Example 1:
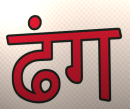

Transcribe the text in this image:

ढंग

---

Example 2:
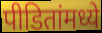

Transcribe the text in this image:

पीडितांमध्ये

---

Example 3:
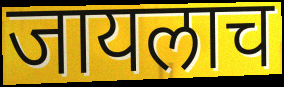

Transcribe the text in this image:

जायलाच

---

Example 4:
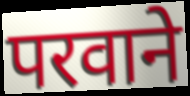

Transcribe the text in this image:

परवाने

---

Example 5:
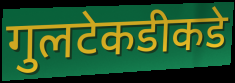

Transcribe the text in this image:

गुलटेकडीकडे